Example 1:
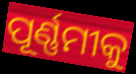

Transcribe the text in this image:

ପୂର୍ଣ୍ଣମୀକୁ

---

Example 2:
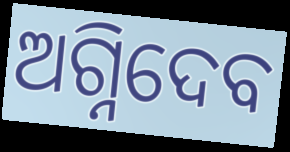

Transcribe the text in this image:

ଅଗ୍ନିଦେବ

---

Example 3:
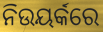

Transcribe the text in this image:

ନିଉୟର୍କରେ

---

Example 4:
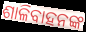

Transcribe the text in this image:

ଶାଳିବାହନଙ୍କ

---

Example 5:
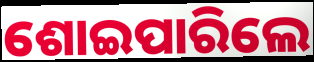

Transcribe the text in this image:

ଶୋଇପାରିଲେ